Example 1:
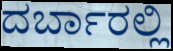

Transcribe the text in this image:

ದರ್ಬಾರಲ್ಲಿ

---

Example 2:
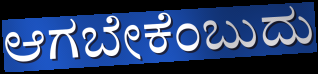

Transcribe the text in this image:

ಆಗಬೇಕೆಂಬುದು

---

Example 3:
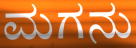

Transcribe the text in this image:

ಮಗನು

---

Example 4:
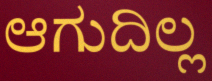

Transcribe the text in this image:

ಆಗುದಿಲ್ಲ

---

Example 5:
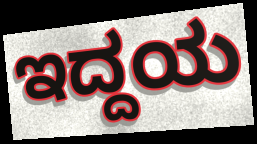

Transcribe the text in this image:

ಇದ್ದಯ